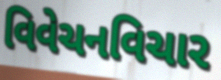
વિવેચનવિચાર